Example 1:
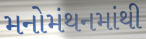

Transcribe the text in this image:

મનોમંથનમાંથી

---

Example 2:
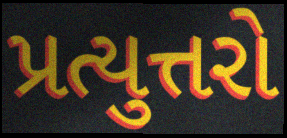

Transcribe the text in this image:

પ્રત્યુત્તરો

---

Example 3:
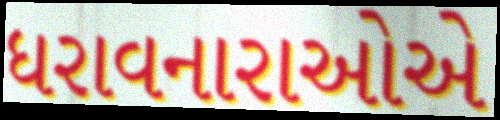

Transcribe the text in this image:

ધરાવનારાઓએ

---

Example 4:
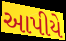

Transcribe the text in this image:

આપીયે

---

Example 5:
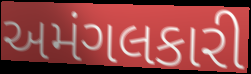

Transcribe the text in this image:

અમંગલકારી